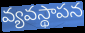
వ్యవస్థాపన